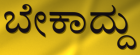
ಬೇಕಾದ್ದು